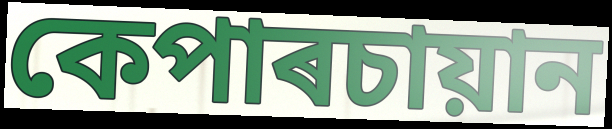
কেপাৰচায়ান